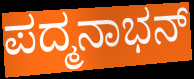
ಪದ್ಮನಾಭನ್